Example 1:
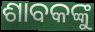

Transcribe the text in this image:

ଶାବକଙ୍କୁ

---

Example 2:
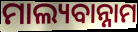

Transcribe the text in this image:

ମାଲ୍ୟବାନ୍ନାମ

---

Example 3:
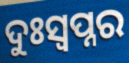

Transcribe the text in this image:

ଦୁଃସ୍ବପ୍ନର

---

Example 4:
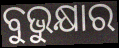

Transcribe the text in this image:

ବୁଭୁକ୍ଷାର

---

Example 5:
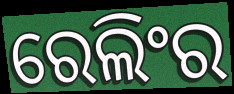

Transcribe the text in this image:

ରେଲିଂର